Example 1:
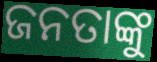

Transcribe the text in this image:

ଜନତାଙ୍କୁ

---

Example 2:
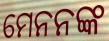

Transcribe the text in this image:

ମେନନଙ୍କ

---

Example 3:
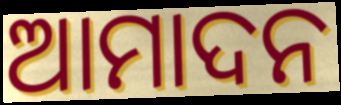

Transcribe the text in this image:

ଆମାଦନ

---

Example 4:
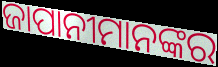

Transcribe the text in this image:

ଜାପାନୀମାନଙ୍କର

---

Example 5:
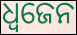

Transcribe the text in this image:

ଧ୍ଵଜେନ